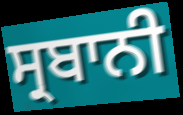
ਸ੍ਰਬਾਨੀ